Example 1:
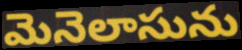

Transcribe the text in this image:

మెనెలాసును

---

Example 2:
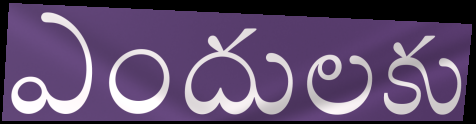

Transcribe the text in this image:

ఎందులకు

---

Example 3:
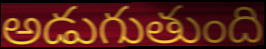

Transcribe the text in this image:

అడుగుతుంది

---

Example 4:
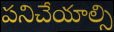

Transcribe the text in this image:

పనిచేయాల్సి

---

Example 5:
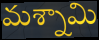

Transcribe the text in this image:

మశ్నామి